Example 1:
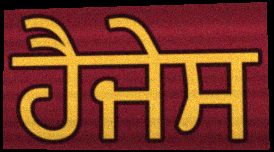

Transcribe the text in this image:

ਹੈਜੇਸ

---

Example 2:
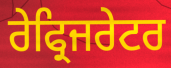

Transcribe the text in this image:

ਰੇਫ੍ਰਿਜਰੇਟਰ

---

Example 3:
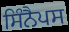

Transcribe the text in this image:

ਸਿੰਨੈਪਸ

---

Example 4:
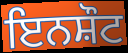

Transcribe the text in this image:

ਇਨਸ਼ੌਟ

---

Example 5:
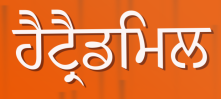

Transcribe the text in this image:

ਹੈਟ੍ਰੈਡਮਿਲ